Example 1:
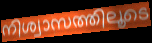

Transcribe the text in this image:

നിശ്വാസത്തിലൂടെ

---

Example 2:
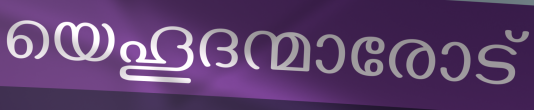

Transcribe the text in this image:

യെഹൂദന്മാരോട്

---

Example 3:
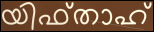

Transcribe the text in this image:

യിഫ്താഹ്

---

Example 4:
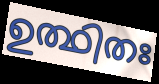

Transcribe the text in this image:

ഉത്ഥിതഃ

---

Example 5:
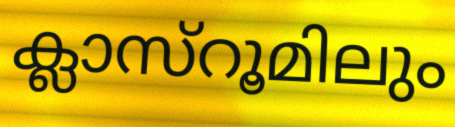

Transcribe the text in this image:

ക്ലാസ്റൂമിലും